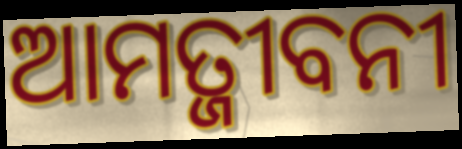
ଆମତ୍ଜୀବନୀ